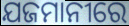
ଯଜମାନୀରେ